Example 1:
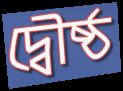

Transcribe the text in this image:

দ্বৌষ্ঠ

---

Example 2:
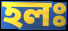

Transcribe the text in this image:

হলঃ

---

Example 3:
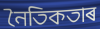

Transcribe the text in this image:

নৈতিকতাৰ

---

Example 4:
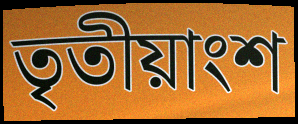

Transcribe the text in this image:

তৃতীয়াংশ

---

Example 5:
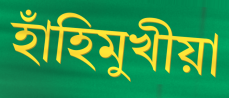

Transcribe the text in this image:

হাঁহিমুখীয়া